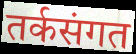
तर्कसंगत